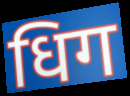
धिग